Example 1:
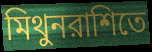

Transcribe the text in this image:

মিথুনরাশিতে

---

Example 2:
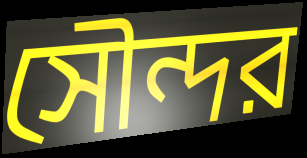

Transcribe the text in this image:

সৌন্দর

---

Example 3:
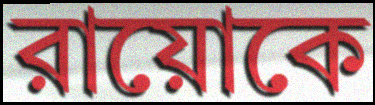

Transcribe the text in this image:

রায়োকে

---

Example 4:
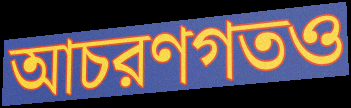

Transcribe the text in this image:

আচরণগতও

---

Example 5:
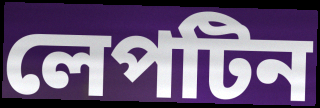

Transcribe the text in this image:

লেপটিন